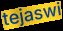
tejaswi